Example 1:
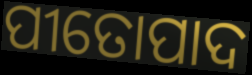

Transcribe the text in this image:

ପୀତୋପାଦ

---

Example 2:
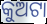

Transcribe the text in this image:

କୁଅଟା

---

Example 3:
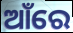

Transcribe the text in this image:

ଆଁରେ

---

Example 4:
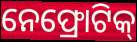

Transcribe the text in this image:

ନେଫ୍ରୋଟିକ୍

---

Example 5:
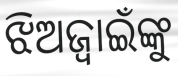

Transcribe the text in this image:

ଝିଅଜ୍ୱାଇଁଙ୍କୁ